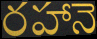
రహానె